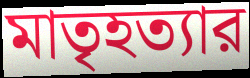
মাতৃহত্যার